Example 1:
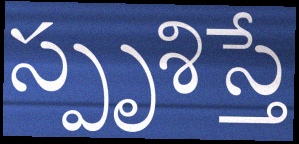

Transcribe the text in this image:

స్పృశిస్తే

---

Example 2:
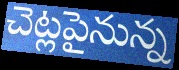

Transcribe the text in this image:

చెట్లపైనున్న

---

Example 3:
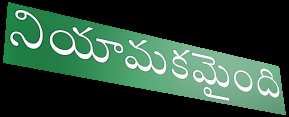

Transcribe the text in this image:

నియామకమైంది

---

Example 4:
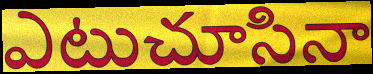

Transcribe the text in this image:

ఎటుచూసినా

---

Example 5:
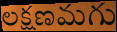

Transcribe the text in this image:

లక్షణమగు